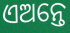
ଏଅନ୍ତେ